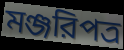
মঞ্জরিপত্র